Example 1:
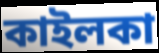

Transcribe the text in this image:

কাইলকা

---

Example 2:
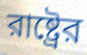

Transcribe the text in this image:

রাষ্ট্রের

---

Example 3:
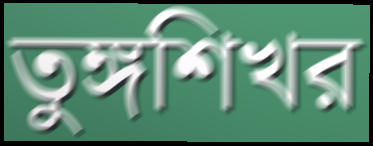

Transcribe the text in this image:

তুঙ্গশিখর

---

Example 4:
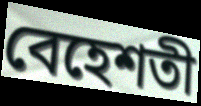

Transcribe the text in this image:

বেহেশতী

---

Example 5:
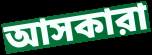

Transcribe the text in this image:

আসকারা